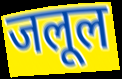
जलूल